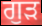
ਗੁੜ